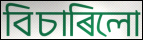
বিচাৰিলো